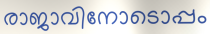
രാജാവിനോടൊപ്പം